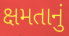
ક્ષમતાનું